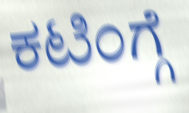
ಕಟಿಂಗ್ಗೆ